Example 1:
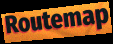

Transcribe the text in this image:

Routemap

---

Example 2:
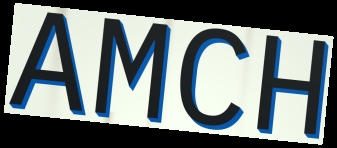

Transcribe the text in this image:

AMCH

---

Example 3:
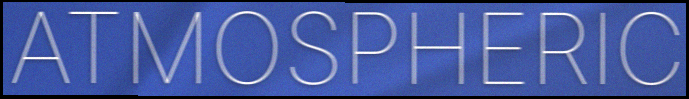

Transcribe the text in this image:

ATMOSPHERIC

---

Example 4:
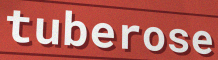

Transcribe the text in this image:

tuberose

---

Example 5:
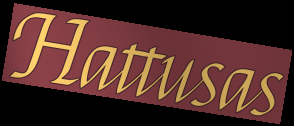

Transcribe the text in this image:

Hattusas